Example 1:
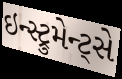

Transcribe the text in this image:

ઇન્સ્ટ્રુમેન્ટ્સે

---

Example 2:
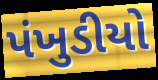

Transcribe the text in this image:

પંખુડીયો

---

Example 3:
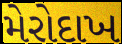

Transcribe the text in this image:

મેરોદાખ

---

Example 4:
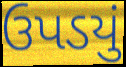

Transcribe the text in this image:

ઉપડયું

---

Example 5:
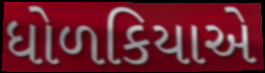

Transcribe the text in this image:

ધોળકિયાએ